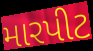
મારપીટ